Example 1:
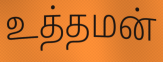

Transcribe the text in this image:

உத்தமன்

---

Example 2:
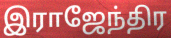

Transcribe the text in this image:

இராஜேந்திர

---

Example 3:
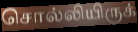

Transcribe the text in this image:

சொல்லியிருக்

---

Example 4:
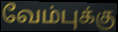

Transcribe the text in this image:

வேம்புக்கு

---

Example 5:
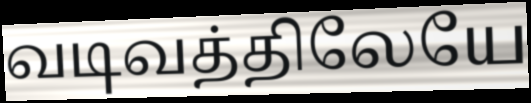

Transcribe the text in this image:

வடிவத்திலேயே